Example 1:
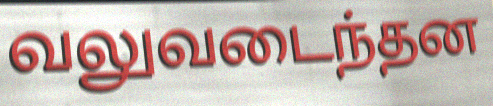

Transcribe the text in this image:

வலுவடைந்தன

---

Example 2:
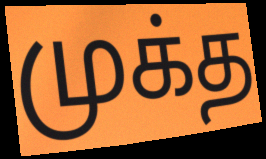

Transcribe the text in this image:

முக்த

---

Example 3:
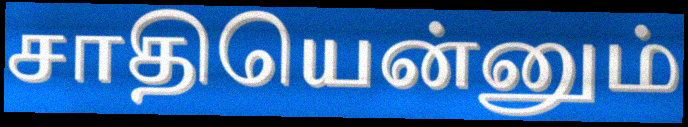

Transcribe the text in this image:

சாதியென்னும்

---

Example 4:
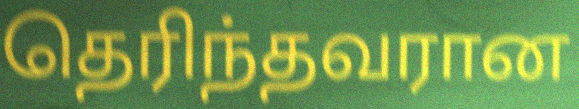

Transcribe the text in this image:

தெரிந்தவரான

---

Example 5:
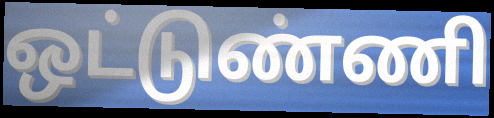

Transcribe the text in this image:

ஒட்டுண்ணி